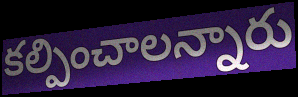
కల్పించాలన్నారు